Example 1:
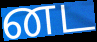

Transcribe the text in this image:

னட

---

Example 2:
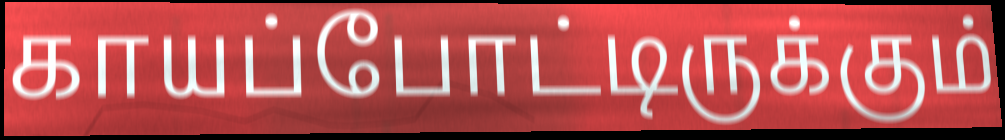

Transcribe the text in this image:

காயப்போட்டிருக்கும்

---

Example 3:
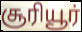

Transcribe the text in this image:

சூரியூர்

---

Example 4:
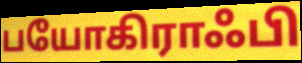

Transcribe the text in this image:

பயோகிராஃபி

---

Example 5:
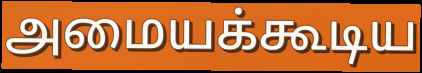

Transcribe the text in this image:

அமையக்கூடிய